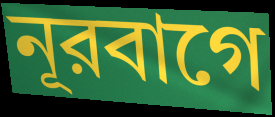
নূরবাগে